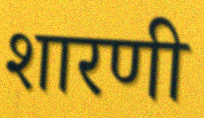
शारणी